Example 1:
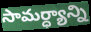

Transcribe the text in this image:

సామర్ధ్యాన్ని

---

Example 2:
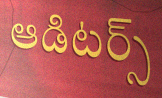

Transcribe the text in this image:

ఆడిటర్స్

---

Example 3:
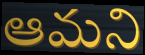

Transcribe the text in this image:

ఆమని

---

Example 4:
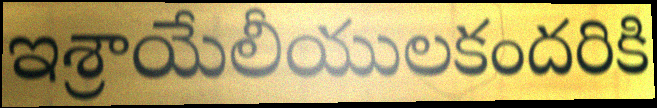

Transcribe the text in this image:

ఇశ్రాయేలీయులకందరికి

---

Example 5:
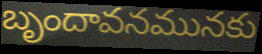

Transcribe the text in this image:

బృందావనమునకు